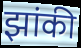
झांकी